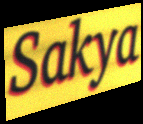
Sakya